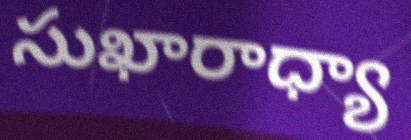
సుఖారాధ్యా